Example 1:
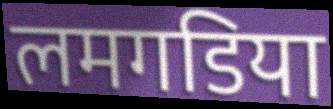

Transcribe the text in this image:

लमगडिया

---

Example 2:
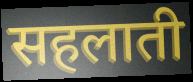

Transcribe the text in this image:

सहलाती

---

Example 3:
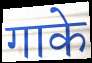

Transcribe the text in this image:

गाके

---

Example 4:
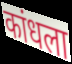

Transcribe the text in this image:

कांधला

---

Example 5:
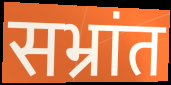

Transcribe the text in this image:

सभ्रांत